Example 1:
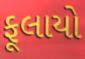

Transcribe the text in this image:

ફૂલાયો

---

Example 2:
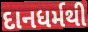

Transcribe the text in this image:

દાનધર્મથી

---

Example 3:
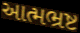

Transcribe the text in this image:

આત્મભ્રષ્ટ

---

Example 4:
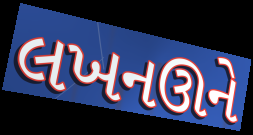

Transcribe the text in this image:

લખનઊને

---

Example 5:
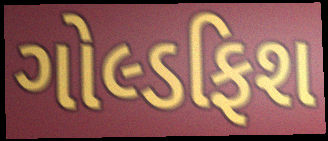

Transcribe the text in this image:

ગોલ્ડફિશ